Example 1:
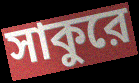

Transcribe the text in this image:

সাকুরে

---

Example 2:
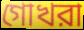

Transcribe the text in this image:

গোখরা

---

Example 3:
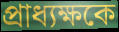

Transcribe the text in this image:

প্রাধ্যক্ষকে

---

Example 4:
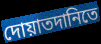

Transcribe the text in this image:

দোয়াতদানিতে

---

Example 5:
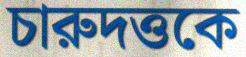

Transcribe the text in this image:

চারুদত্তকে